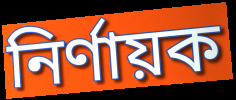
নির্ণায়ক